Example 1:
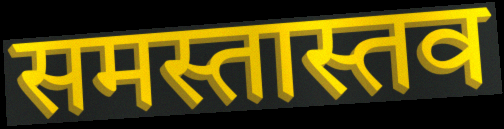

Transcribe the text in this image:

समस्तास्तव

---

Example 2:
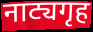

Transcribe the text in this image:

नाट्यगृह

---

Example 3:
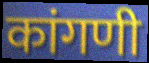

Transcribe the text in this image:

कांगणी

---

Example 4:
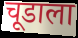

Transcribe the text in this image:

चूडाला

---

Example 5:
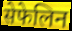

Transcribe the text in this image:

सेफेलिन